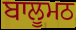
ਬਾਲੂਮਠ